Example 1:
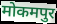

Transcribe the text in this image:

मोकमपुर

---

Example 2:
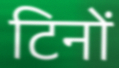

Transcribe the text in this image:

टिनों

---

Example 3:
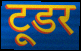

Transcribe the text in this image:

टूडर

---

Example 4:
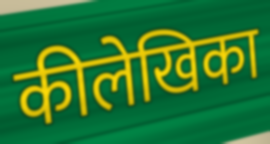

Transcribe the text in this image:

कीलेखिका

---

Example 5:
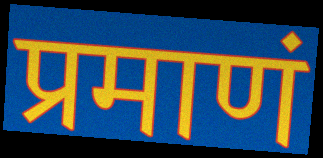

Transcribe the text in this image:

प्रमाणं